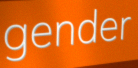
gender